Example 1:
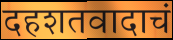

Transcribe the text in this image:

दहशतवादाचं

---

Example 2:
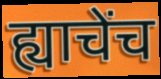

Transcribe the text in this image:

ह्याचेंच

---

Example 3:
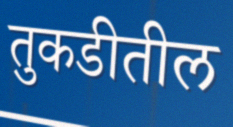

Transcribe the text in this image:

तुकडीतील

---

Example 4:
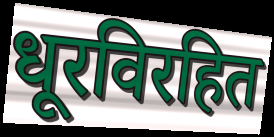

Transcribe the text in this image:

धूरविरहित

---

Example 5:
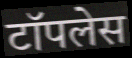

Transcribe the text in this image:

टॉपलेस